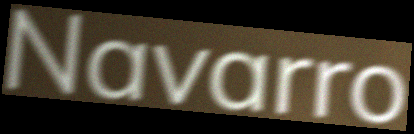
Navarro